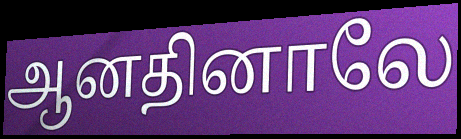
ஆனதினாலே